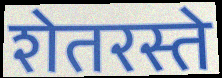
शेतरस्ते